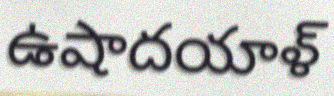
ఉషాదయాళ్